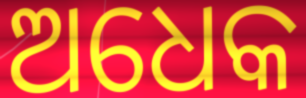
ଅଧେକ